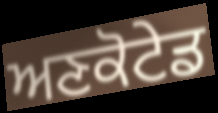
ਅਣਕੋਟੇਡ